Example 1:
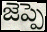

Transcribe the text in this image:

జెప్పె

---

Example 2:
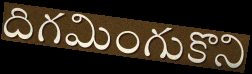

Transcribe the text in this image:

దిగమింగుకొని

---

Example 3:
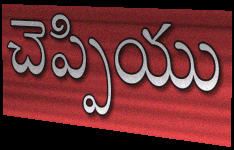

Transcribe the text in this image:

చెప్పియు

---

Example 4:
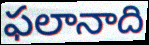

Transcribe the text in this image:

ఫలానాది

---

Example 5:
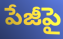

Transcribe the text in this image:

పేజీపై